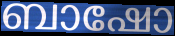
ബാഷോ